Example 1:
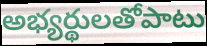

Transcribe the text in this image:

అభ్యర్థులతోపాటు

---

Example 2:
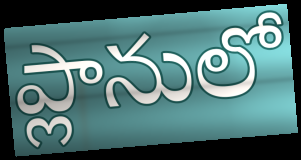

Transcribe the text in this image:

ప్లానులో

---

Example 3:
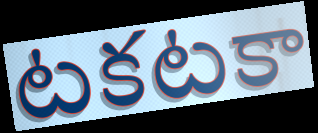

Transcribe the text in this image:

టకటకా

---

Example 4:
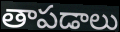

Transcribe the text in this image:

తాపడాలు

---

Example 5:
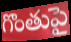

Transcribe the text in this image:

గొంతుపై